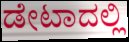
ಡೇಟಾದಲ್ಲಿ